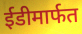
ईडीमार्फत